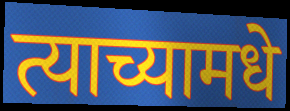
त्याच्यामधे